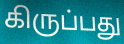
கிருப்பது